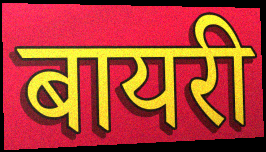
बायरी